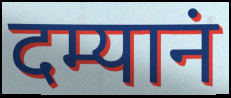
दम्यानं